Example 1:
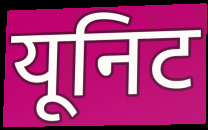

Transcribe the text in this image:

यूनिट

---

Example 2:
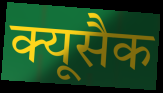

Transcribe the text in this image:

क्यूसैक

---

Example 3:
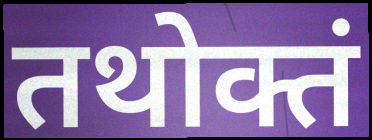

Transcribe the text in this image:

तथोक्तं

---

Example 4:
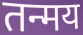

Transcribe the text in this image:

तन्‍मय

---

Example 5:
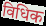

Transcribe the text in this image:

विधिक